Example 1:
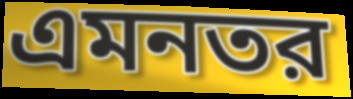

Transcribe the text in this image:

এমনতর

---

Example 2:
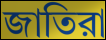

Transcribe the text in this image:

জাতিরা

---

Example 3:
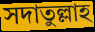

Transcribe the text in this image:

সদাতুল্লাহ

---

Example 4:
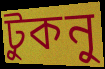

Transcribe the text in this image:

টুকনু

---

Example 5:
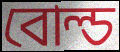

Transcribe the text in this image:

বোল্ড